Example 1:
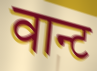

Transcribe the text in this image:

वान्ट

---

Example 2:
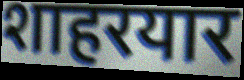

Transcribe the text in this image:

शाहरयार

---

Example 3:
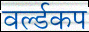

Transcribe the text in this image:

वर्ल्डकप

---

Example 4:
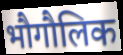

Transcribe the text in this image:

भौगौलिक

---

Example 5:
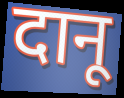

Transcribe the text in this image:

दानू